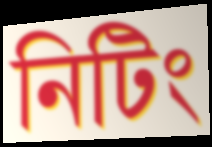
নিটিং